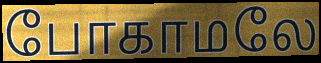
போகாமலே